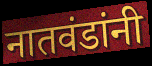
नातवंडांनी